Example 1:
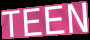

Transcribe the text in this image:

TEEN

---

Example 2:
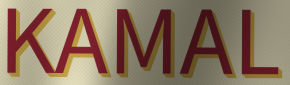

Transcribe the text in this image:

KAMAL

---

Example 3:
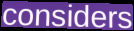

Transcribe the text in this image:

considers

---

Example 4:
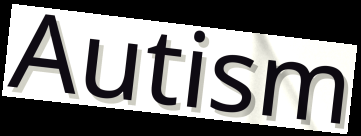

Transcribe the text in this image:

Autism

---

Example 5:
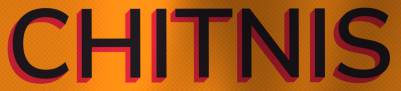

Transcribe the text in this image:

CHITNIS